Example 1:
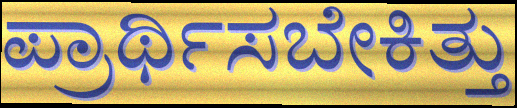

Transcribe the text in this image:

ಪ್ರಾರ್ಥಿಸಬೇಕಿತ್ತು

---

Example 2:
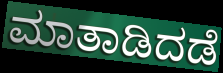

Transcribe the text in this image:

ಮಾತಾಡಿದಡೆ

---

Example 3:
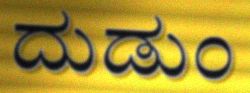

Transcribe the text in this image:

ದುಡುಂ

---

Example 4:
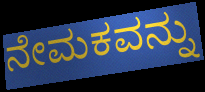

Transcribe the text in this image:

ನೇಮಕವನ್ನು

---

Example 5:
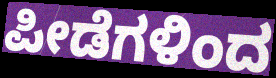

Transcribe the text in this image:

ಪೀಡೆಗಳಿಂದ